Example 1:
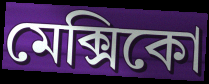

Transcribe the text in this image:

মেক্সিকো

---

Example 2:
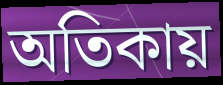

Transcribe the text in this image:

অতিকায়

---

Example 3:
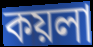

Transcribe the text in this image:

কয়লা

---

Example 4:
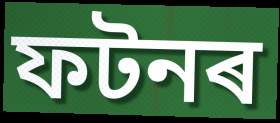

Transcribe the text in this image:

ফটনৰ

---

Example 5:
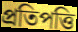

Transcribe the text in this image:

প্ৰতিপত্তি